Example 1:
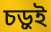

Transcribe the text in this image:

চড়ুই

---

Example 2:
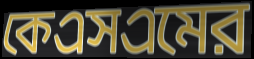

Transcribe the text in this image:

কেএসএমের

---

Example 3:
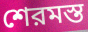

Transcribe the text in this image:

শেরমস্ত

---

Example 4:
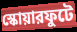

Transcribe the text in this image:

স্কোয়ারফুটে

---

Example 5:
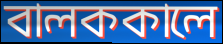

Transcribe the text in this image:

বালককালে